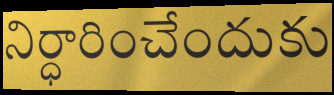
నిర్ధారించేందుకు